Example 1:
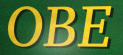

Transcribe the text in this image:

OBE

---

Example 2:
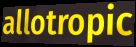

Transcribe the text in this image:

allotropic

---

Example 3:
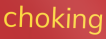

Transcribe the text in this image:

choking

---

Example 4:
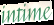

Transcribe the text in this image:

intime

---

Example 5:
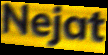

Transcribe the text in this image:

Nejat